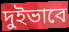
দুইভাবে